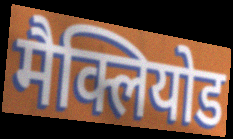
मैक्लियोड